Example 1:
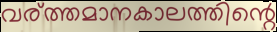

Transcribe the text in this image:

വര്ത്തമാനകാലത്തിന്റെ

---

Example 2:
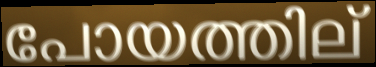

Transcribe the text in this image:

പോയത്തില്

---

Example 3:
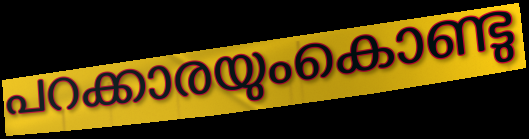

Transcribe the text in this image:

പറക്കാരയുംകൊണ്ടു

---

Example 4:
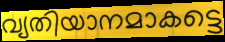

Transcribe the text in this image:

വ്യതിയാനമാകട്ടെ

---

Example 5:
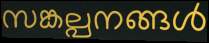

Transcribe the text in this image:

സങ്കല്പനങ്ങൾ